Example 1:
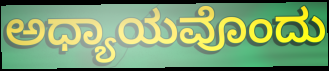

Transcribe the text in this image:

ಅಧ್ಯಾಯವೊಂದು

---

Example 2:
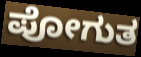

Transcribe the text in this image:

ಪೋಗುತ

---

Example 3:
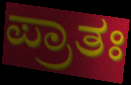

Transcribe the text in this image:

ಪ್ರಾತಃ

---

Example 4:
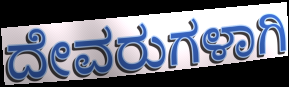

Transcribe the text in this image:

ದೇವರುಗಳಾಗಿ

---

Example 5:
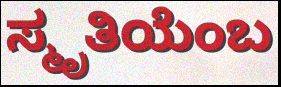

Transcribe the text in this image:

ಸ್ಮೃತಿಯೆಂಬ